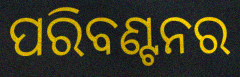
ପରିବଣ୍ଟନର